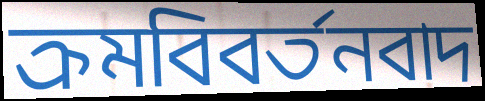
ক্রমবিবর্তনবাদ